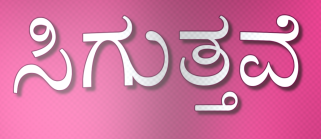
ಸಿಗುತ್ತವೆ